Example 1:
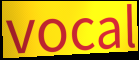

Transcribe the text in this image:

vocal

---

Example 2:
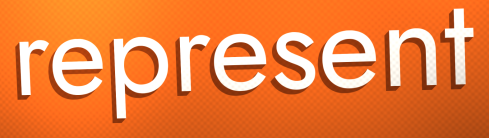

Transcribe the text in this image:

represent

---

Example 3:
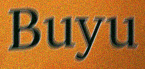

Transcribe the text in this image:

Buyu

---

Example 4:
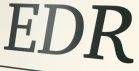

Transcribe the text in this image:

EDR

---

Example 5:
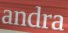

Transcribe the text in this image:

andra